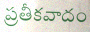
ప్రతీకవాదం